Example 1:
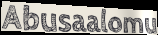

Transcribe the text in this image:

Abusaalomu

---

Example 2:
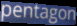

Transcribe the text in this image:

pentagon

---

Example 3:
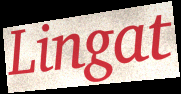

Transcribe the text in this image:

Lingat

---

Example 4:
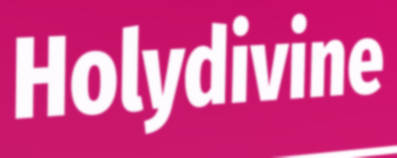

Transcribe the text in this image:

Holydivine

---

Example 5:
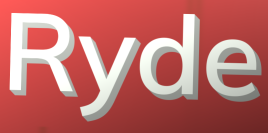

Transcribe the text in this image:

Ryde